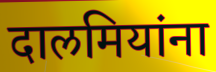
दालमियांना